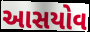
આસયોવ